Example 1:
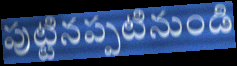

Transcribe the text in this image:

పుట్టినప్పటినుండి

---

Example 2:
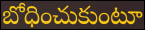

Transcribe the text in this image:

బోధించుకుంటూ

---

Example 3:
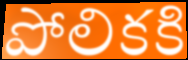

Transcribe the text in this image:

పోలికకి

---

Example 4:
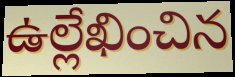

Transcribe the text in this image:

ఉల్లేఖించిన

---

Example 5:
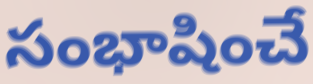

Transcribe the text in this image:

సంభాషించే